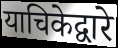
याचिकेद्वारे